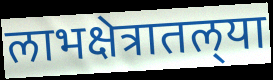
लाभक्षेत्रातल्या